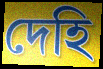
দেহি